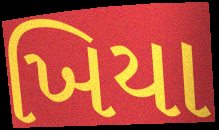
ખિયા